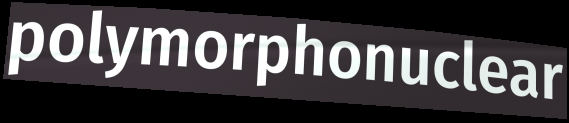
polymorphonuclear